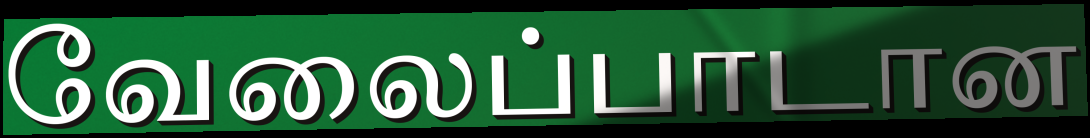
வேலைப்பாடான